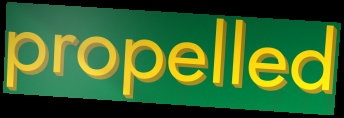
propelled